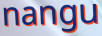
nangu